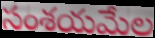
సంశయమేల